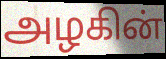
அழகின்